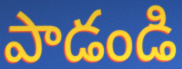
పాడండి